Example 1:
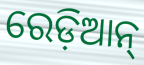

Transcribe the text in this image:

ରେଡ଼ିଆନ୍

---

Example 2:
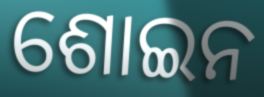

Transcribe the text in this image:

ଶୋଇନ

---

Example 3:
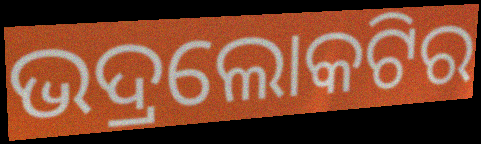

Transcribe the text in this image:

ଭଦ୍ରଲୋକଟିର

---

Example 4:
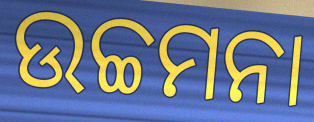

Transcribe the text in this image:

ଉଚ୍ଚମନା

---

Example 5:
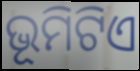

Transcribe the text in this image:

ଭୂମିଟିଏ